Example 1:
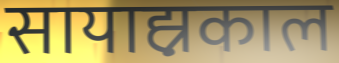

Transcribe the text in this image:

सायाह्नकाल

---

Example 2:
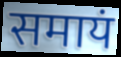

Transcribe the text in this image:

समायं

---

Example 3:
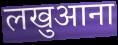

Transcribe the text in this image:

लखुआना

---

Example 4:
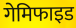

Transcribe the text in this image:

गेमिफाइड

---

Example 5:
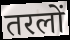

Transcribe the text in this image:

तरलों